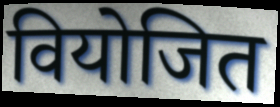
वियोजित